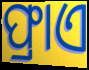
ଫ୍ରାଏ